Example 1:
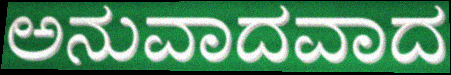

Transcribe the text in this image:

ಅನುವಾದವಾದ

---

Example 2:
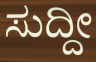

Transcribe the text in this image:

ಸುದ್ದೀ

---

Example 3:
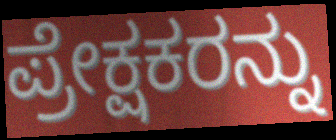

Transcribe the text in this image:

ಪ್ರೇಕ್ಷಕರನ್ನು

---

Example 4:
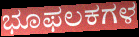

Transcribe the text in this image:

ಭೂಫಲಕಗಳ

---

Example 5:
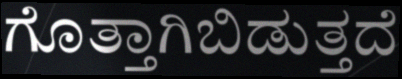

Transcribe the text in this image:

ಗೊತ್ತಾಗಿಬಿಡುತ್ತದೆ